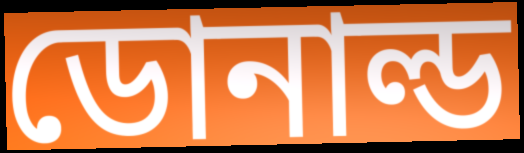
ডোনাল্ড